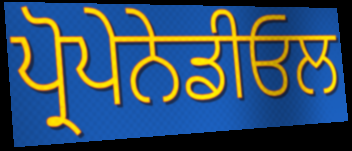
ਪ੍ਰੋਪੇਨੇਡੀਓਲ